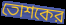
তোশকের